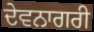
ਦੇਵਨਾਗਰੀ